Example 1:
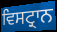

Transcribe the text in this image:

ਵਿਸਟ੍ਰਾਨ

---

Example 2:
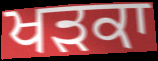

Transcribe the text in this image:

ਖੜਕਾ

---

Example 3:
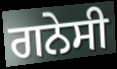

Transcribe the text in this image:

ਗਨੇਸੀ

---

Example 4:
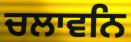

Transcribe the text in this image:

ਚਲਾਵਨਿ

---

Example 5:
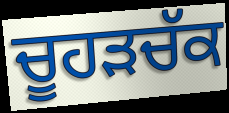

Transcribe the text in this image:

ਚੂਹਡ਼ਚੱਕ